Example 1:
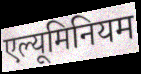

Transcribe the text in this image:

एल्यूमिनियम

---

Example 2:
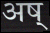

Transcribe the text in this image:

अष्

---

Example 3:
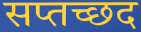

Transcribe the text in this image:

सप्तच्छद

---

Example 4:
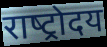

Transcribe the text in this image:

राष्ट्रोदय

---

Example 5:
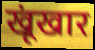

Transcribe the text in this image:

खूंखार